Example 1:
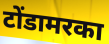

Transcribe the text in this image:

टोंडामरका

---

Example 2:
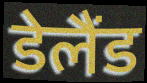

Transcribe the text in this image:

डेलैंड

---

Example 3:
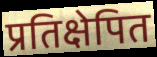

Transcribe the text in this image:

प्रतिक्षेपित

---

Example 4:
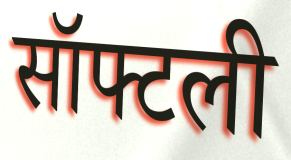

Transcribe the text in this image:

सॉफ्टली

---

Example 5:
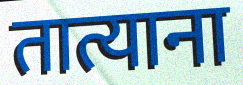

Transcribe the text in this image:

तात्याना